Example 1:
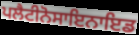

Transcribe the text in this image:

ਪਲੈਟੀਨੋਸਾਇਨਾਇਡ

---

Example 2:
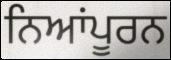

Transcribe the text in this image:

ਨਿਆਂਪੂਰਨ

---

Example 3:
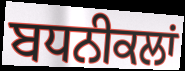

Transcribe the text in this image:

ਬਧਨੀਕਲਾਂ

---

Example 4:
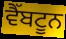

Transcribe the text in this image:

ਵੈੱਬਟੂਨ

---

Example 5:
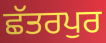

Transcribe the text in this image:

ਛੱਤਰਪੁਰ